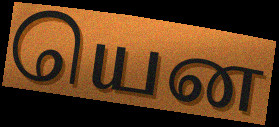
யென